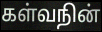
கள்வநின்